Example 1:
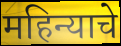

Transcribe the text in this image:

महिन्याचे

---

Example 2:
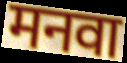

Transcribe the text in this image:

मनवा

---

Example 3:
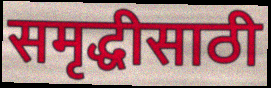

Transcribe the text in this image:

समृद्धीसाठी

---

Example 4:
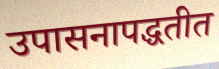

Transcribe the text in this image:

उपासनापद्धतीत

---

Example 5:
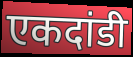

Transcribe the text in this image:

एकदांडी